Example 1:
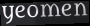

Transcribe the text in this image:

yeomen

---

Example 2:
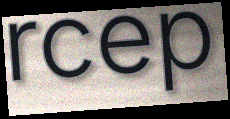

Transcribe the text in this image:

rcep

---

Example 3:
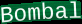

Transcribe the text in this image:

Bombal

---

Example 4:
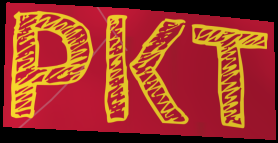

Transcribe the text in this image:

PKT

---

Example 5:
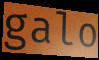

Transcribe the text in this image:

galo